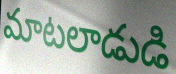
మాటలాడుడి